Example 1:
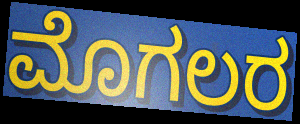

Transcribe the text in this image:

ಮೊಗಲರ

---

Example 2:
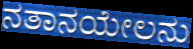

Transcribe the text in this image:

ನತಾನಯೇಲನು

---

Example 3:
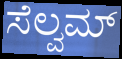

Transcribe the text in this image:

ಸೆಲ್ವಮ್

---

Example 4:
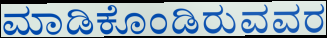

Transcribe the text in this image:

ಮಾಡಿಕೊಂಡಿರುವವರ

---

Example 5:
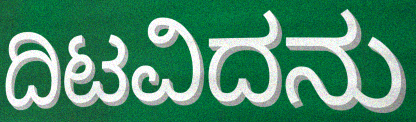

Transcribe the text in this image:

ದಿಟವಿದನು